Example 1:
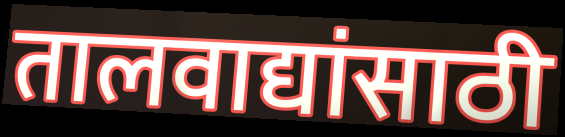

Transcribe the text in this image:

तालवाद्यांसाठी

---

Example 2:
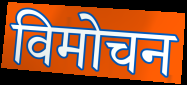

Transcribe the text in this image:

विमोचन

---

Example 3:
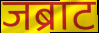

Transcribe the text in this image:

जब्राट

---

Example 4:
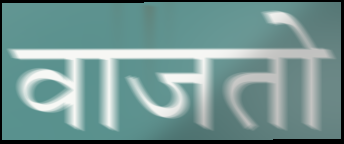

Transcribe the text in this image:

वाजतो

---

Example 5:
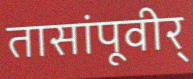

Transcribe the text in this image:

तासांपूवीर्